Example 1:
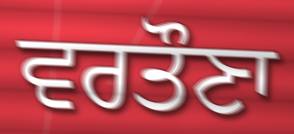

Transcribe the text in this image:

ਵਰਤੌਣਾ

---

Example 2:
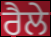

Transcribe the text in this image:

ਰੈਲੇ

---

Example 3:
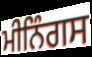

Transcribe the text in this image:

ਮੀਨਿੰਗਸ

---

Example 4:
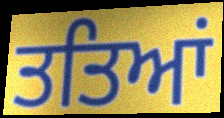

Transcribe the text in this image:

ਤਤਿਆਂ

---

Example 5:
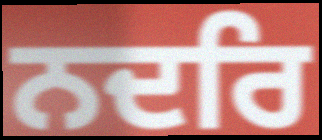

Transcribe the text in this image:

ਨਦਰਿ